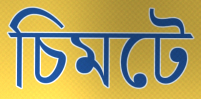
চিমটে